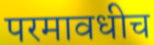
परमावधीच